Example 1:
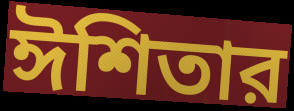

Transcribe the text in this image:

ঈশিতার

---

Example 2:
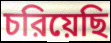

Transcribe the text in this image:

চরিয়েছি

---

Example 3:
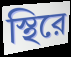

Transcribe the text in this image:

স্থিরে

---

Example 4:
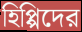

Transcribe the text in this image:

হিপ্পিদের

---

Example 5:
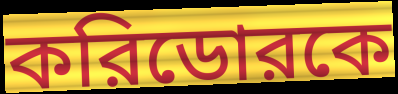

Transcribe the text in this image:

করিডোরকে